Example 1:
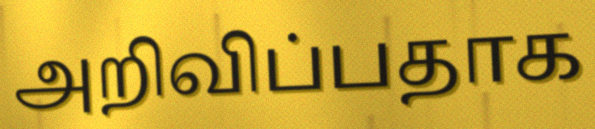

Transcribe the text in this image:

அறிவிப்பதாக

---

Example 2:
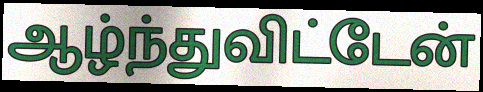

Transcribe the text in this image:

ஆழ்ந்துவிட்டேன்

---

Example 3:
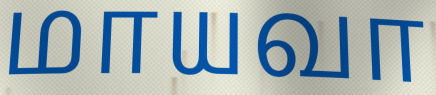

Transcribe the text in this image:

மாயவா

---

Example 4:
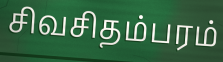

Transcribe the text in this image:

சிவசிதம்பரம்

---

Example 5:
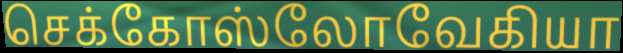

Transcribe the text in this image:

செக்கோஸ்லோவேகியா